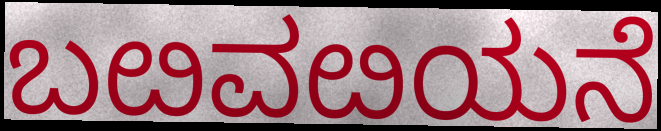
ಬೞವೞಯನೆ